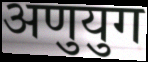
अणुयुग